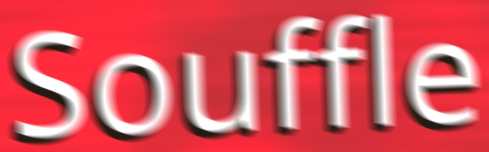
Souffle